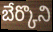
బేర్కొని